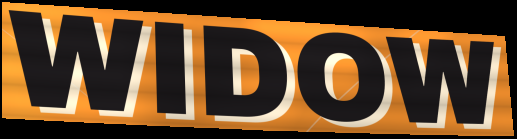
WIDOW